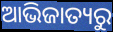
ଆଭିଜାତ୍ୟରୁ